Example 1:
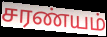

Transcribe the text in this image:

சரண்யம்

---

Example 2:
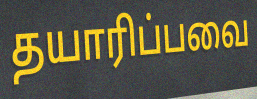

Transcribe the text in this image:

தயாரிப்பவை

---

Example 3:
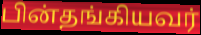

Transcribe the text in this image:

பின்தங்கியவர்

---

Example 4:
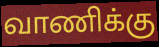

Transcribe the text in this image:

வாணிக்கு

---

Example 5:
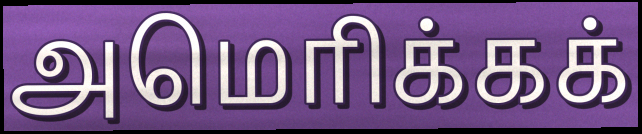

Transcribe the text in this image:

அமெரிக்கக்